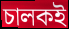
চালকই